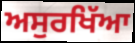
ਅਸੁਰਖਿੱਆ